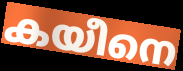
കയീനെ